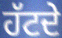
ਹੱਟਦੇ